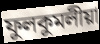
ফুলকুমলীয়া